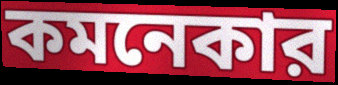
কমনেকার